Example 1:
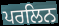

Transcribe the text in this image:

ਪਰਲਿਨ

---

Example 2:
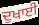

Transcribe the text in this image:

ਦੁਖਾਈ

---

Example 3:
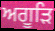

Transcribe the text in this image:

ਅਗੂੜਿ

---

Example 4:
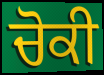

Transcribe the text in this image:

ਚੋਕੀ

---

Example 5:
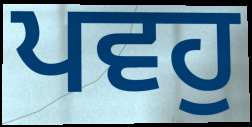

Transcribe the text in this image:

ਪਵਹੁ